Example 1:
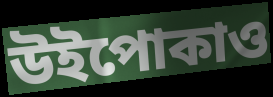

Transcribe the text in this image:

উইপোকাও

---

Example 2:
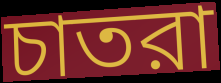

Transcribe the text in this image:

চাতরা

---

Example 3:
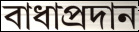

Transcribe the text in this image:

বাধাপ্রদান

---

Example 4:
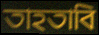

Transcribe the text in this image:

তাহতাবি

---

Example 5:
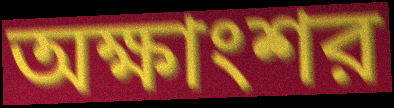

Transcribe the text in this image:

অক্ষাংশর